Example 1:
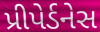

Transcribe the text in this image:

પ્રીપેર્ડનેસ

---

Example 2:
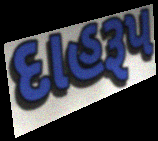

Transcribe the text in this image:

દાહરૂપ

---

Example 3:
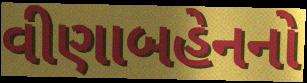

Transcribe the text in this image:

વીણાબહેનનો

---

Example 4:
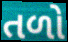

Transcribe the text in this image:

તળો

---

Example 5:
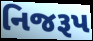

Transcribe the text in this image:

નિજરૂપ